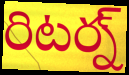
రిటర్న్